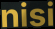
nisi